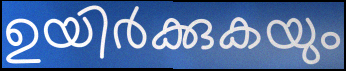
ഉയിർക്കുകയും